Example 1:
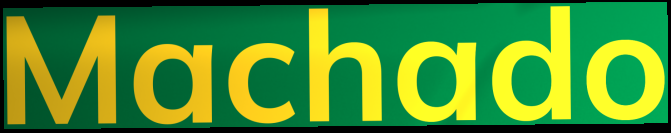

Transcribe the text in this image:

Machado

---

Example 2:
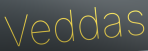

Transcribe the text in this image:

Veddas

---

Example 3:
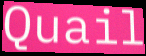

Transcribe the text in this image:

Quail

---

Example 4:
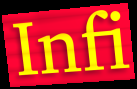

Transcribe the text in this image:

Infi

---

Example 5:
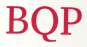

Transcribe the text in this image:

BQP